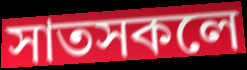
সাতসকলে